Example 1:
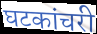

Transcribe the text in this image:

घटकांचरी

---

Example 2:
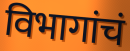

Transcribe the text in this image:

विभागांचं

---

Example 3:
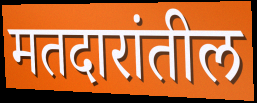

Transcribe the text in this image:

मतदारांतील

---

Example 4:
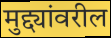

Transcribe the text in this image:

मुद्द्यांवरील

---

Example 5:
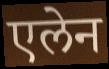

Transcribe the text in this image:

एलेन